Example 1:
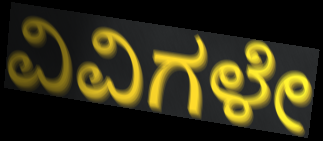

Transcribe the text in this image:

ವಿವಿಗಳೇ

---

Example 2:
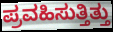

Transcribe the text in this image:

ಪ್ರವಹಿಸುತ್ತಿತ್ತು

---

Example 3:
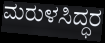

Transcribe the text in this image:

ಮರುಳಸಿದ್ಧರ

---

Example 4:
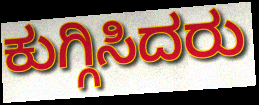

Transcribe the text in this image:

ಕುಗ್ಗಿಸಿದರು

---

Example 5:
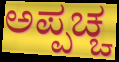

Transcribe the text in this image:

ಅಪ್ಪಚ್ಚ